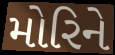
મોરિને